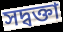
সদ্বক্তা